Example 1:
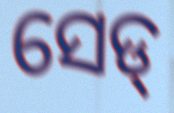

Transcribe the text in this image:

ସେଡ୍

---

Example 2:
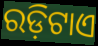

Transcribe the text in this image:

ରଡ଼ିଟାଏ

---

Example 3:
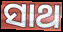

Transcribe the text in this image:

ସାଥ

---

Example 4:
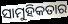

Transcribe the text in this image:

ସାମୁହିକତାର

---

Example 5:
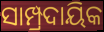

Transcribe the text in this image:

ସାମ୍ପ୍ରଦାୟିକ